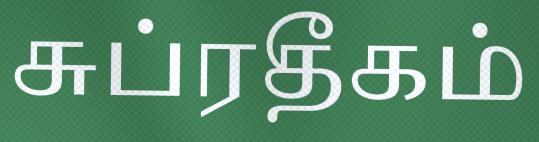
சுப்ரதீகம்